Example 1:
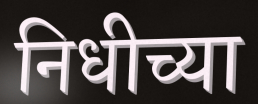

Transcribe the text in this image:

निधीच्या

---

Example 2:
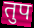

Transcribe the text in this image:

तुप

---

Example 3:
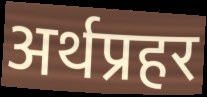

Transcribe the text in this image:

अर्थप्रहर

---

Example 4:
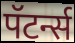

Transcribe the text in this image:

पॅटर्न्स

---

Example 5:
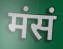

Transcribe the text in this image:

मंसं